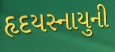
હૃદયસ્નાયુની